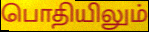
பொதியிலும்